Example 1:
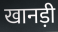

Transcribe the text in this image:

खानड़ी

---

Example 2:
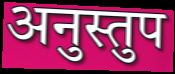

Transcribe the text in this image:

अनुस्तुप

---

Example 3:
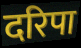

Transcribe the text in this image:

दरिपा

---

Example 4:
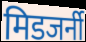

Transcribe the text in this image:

मिडजर्नी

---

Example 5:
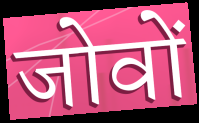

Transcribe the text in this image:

जोवों